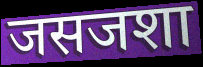
जसजशा